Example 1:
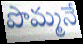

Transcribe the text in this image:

పొమ్మనే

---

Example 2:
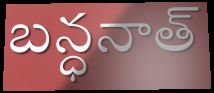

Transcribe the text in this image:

బన్ధనాత్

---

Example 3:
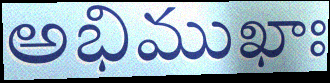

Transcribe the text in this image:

అభిముఖాః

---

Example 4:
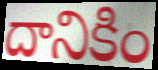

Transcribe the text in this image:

దానికిం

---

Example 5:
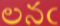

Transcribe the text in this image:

లనఁ